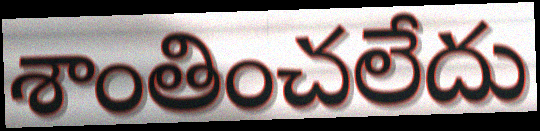
శాంతించలేదు